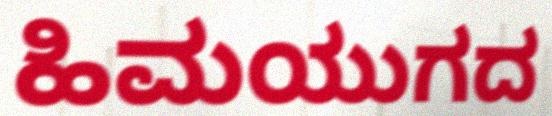
ಹಿಮಯುಗದ